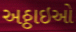
અઠ્ઠાઇઓ